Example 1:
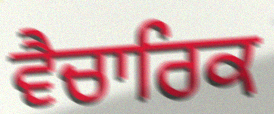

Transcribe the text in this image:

ਵੈਚਾਰਿਕ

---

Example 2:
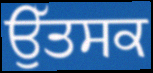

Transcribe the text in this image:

ਉੱਤਸਕ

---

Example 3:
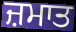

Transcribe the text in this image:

ਜ਼ਮਾਤ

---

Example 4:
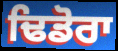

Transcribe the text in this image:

ਢਿਡੋਰਾ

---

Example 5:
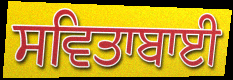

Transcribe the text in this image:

ਸਵਿਤਾਬਾਈ